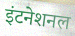
इंटनेशनल